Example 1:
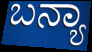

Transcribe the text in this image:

ಬನ್ಯಾ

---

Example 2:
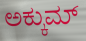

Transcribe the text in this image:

ಅಕ್ಕುಮ್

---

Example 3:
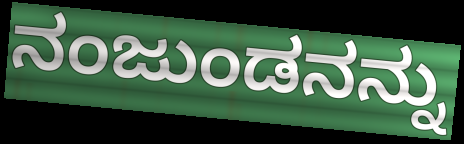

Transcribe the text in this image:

ನಂಜುಂಡನನ್ನು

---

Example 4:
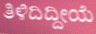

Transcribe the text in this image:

ತಿಳಿದಿದ್ದೀಯೆ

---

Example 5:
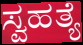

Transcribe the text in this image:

ಸ್ವಹತ್ಯೆ